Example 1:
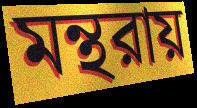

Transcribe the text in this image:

মন্থরায়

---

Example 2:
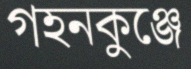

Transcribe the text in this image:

গহনকুঞ্জে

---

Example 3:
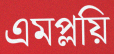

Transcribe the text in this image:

এমপ্লয়ি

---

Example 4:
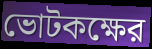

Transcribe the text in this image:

ভোটকক্ষের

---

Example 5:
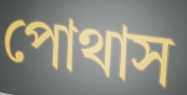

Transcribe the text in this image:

পোথাস